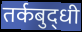
तर्कबुद्धी